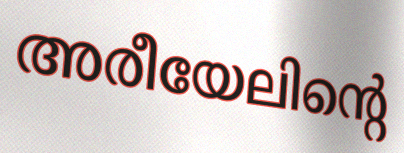
അരീയേലിന്റെ